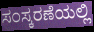
ಸಂಸ್ಕರಣೆಯಲ್ಲಿ